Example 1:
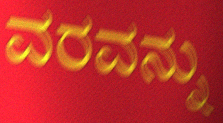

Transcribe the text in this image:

ವರವನ್ನು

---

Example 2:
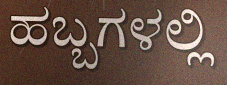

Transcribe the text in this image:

ಹಬ್ಬಗಳಲ್ಲಿ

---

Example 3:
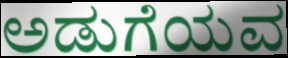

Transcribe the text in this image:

ಅಡುಗೆಯವ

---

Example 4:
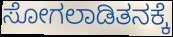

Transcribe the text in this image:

ಸೋಗಲಾಡಿತನಕ್ಕೆ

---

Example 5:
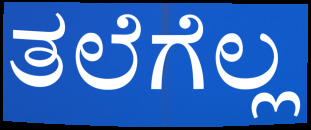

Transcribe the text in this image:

ತಲೆಗೆಲ್ಲ